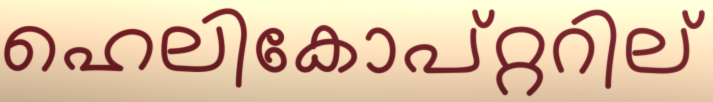
ഹെലികോപ്റ്ററില്